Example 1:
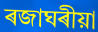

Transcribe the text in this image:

ৰজাঘৰীয়া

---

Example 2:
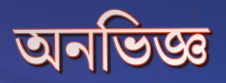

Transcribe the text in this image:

অনভিজ্ঞ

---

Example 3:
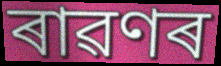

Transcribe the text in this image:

ৰাৱণৰ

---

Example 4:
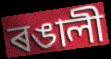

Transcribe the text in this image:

ৰঙালী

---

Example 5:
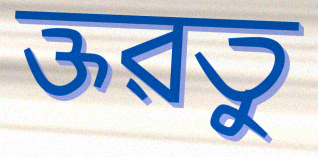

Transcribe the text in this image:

ক্তৱতু